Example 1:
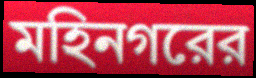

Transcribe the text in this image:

মহিনগরের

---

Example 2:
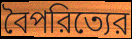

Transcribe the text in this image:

বৈপরিত্যের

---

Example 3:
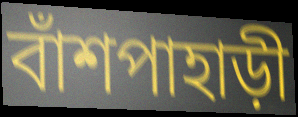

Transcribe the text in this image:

বাঁশপাহাড়ী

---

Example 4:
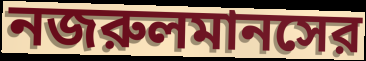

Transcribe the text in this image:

নজরুলমানসের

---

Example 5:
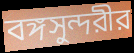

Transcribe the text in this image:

বঙ্গসুন্দরীর